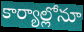
కార్యాల్లోనూ